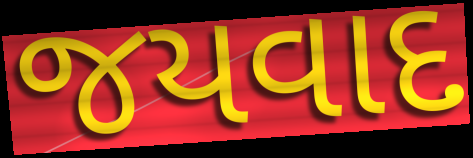
જયવાદ